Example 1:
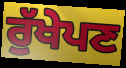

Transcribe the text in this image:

ਰੁੱਖੇਪਣ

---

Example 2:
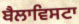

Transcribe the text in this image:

ਬੈਲਾਵਿਸਟਾ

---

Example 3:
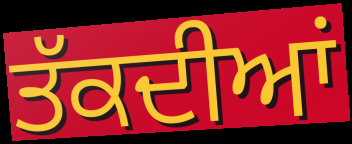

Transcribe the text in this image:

ਤੱਕਦੀਆਂ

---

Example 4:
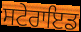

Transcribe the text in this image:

ਸਟੇਰਾਇਡ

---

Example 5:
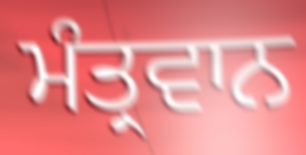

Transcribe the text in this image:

ਮੰਤ੍ਰਵਾਨ